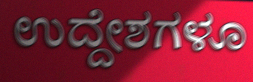
ಉದ್ದೇಶಗಳೂ